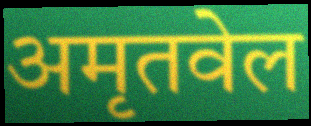
अमृतवेल